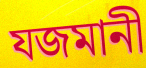
যজমানী